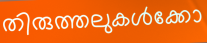
തിരുത്തലുകൾക്കോ